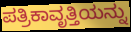
ಪತ್ರಿಕಾವೃತ್ತಿಯನ್ನು